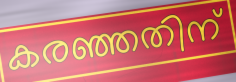
കരഞ്ഞതിന്